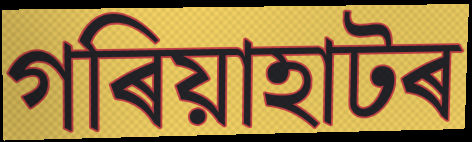
গৰিয়াহাটৰ